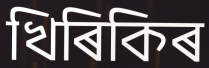
খিৰিকিৰ